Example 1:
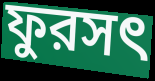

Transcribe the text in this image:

ফুরসৎ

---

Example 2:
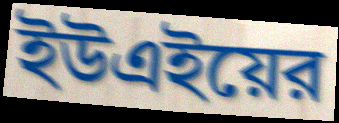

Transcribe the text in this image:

ইউএইয়ের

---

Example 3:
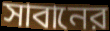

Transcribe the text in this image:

সাবানের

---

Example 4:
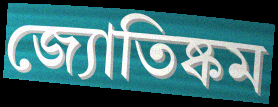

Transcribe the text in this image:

জ্যোতিষ্কম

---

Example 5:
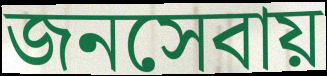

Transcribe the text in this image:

জনসেবায়